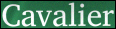
Cavalier